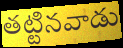
తట్టినవాడు